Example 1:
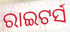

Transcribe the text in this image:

ରାଇଟର୍ସ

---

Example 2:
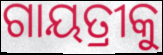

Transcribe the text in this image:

ଗାୟତ୍ରୀକୁ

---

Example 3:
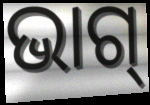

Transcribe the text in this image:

ଭାଗ୍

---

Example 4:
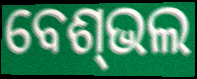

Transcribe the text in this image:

ବେଶ୍‌ଭଲ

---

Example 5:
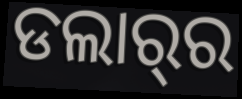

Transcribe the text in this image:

ଡଲାର୍‌ର